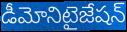
డీమోనిటైజేషన్